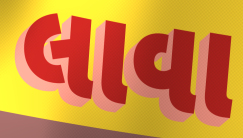
લાવા